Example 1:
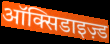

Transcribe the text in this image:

ऑक्सिडाइज़्ड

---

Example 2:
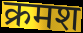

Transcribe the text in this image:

क्रमश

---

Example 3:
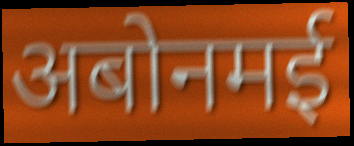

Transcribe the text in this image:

अबोनमई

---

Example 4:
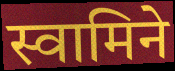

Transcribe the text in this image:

स्वामिने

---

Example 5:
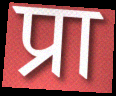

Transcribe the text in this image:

प्रा